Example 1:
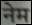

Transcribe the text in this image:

नेम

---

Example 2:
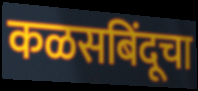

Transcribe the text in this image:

कळसबिंदूचा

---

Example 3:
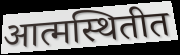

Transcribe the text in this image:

आत्मस्थितीत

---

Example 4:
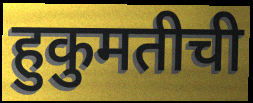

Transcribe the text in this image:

हुकुमतीची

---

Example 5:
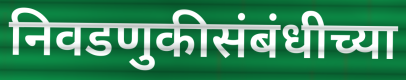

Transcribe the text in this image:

निवडणुकीसंबंधीच्या